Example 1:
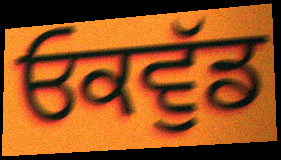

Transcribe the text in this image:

ਓਕਵੁੱਡ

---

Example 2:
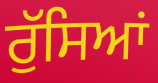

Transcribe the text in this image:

ਰੁੱਸਿਆਂ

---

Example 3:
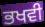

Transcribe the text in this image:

ਭਖਵੀ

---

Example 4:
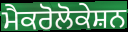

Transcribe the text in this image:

ਮੈਕਰੋਲੋਕੇਸ਼ਨ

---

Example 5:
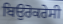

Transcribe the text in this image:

ਬਿਉਰੋਕਰੇਸੀ